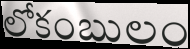
లోకంబులం